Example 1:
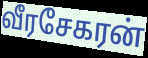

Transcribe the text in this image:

வீரசேகரன்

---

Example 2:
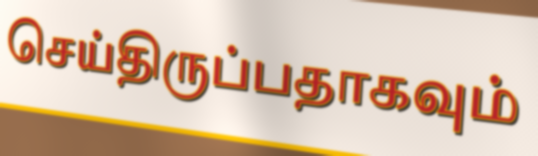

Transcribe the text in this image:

செய்திருப்பதாகவும்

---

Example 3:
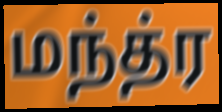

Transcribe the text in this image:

மந்த்ர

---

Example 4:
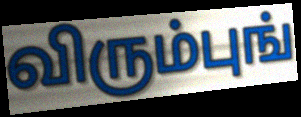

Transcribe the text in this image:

விரும்புங்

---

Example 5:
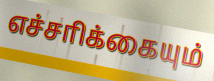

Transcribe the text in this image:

எச்சரிக்கையும்